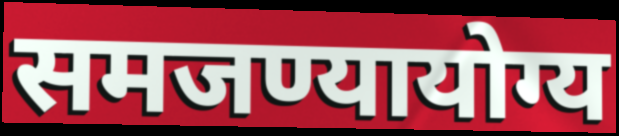
समजण्यायोग्य